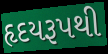
હૃદયરૂપથી